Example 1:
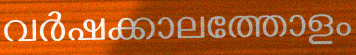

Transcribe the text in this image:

വർഷക്കാലത്തോളം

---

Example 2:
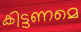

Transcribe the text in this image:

കിട്ടണമെ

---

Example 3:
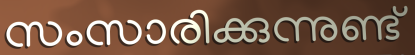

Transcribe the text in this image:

സംസാരിക്കുന്നുണ്ട്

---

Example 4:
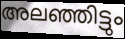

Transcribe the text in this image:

അലഞ്ഞിട്ടും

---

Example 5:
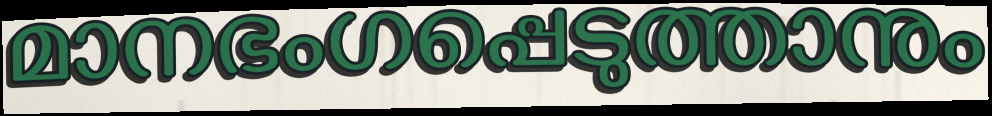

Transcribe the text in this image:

മാനഭംഗപ്പെടുത്താനും